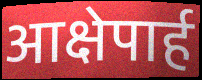
आक्षेपार्ह